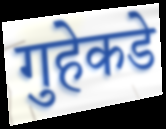
गुहेकडे